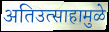
अतिउत्साहामुळे